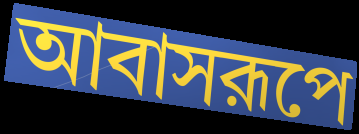
আবাসরূপে